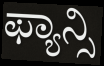
ಫ್ಯಾನ್ಸಿ